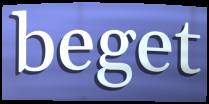
beget